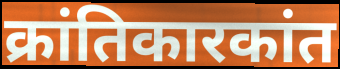
क्रांतिकारकांत